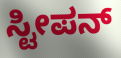
ಸ್ಟೀಪನ್